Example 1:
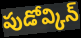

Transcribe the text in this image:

పుడోవ్కిన్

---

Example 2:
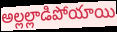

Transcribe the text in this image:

అల్లల్లాడిపోయాయి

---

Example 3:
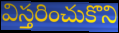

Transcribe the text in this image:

విస్తరించుకొని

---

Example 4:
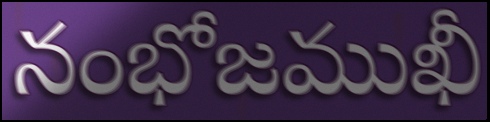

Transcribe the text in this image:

నంభోజముఖీ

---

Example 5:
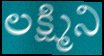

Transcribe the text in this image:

లక్ష్మిని